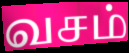
வசம்